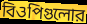
বিওপিগুলোর